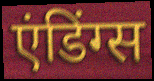
एंडिंग्स